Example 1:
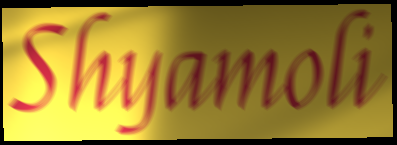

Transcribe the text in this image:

Shyamoli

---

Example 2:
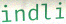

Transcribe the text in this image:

indli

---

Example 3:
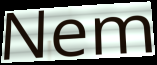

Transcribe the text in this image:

Nem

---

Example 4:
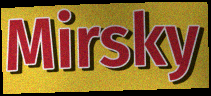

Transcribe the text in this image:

Mirsky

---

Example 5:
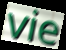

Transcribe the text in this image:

vie